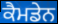
ਕੈਮਡੇਨ